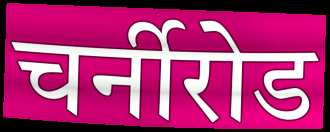
चर्नीरोड